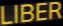
LIBER